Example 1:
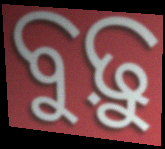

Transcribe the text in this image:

ବୁଢ଼ୁ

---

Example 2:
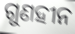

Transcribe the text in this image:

ଗୁଣହୀନ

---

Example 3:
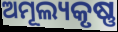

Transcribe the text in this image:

ଅମୂଲ୍ୟକୃଷ୍ଣ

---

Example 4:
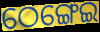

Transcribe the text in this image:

ଠେଙ୍ଗେଇ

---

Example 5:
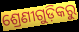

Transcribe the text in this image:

ଶ୍ରେଣୀଗୁଡ଼ିକରୁ